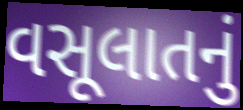
વસૂલાતનું